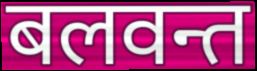
बलवन्त